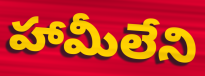
హామీలేని